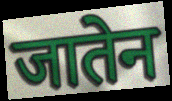
जातेन